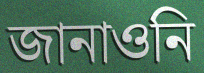
জানাওনি